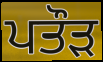
ਪਤੌੜ